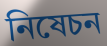
নিষেচন